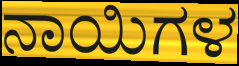
ನಾಯಿಗಳ